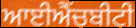
ਆਈਐੱਚਬੀਟੀ